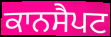
ਕਾਨਸੈਪਟ